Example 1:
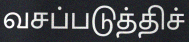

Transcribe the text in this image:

வசப்படுத்திச்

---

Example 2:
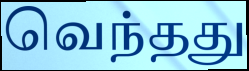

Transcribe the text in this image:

வெந்தது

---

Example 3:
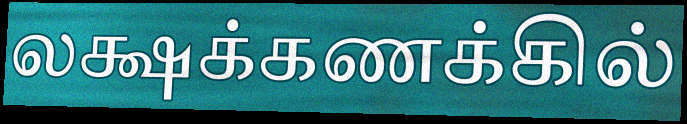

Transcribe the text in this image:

லக்ஷக்கணக்கில்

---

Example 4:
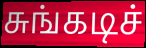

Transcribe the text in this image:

சுங்கடிச்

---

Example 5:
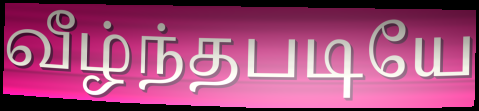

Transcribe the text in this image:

வீழ்ந்தபடியே